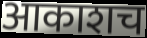
आकाशच